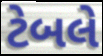
ટેબલે